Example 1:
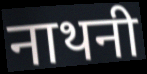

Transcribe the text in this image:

नाथनी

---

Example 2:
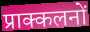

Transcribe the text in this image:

प्राक्कलनों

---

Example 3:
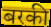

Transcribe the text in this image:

बरकी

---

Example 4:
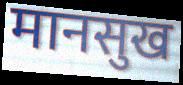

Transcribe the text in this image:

मानसुख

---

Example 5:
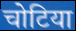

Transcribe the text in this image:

चोटिया